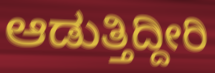
ಆಡುತ್ತಿದ್ದೀರಿ